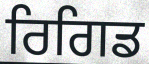
ਰਿਗਿਡ